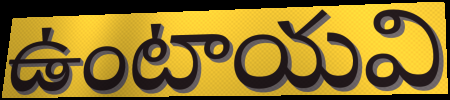
ఉంటాయవి